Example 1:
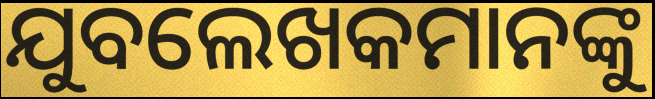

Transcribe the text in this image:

ଯୁବଲେଖକମାନଙ୍କୁ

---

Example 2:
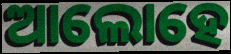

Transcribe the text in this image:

ଆଲୋହେ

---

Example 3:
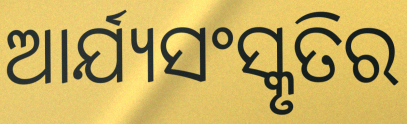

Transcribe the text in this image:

ଆର୍ଯ୍ୟସଂସ୍କୃତିର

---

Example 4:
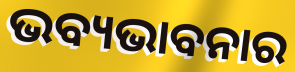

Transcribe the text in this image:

ଭବ୍ୟଭାବନାର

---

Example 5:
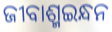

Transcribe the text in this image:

ଜୀବାଶ୍ମଇନ୍ଧନ